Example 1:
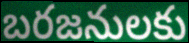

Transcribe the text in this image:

బరజనులకు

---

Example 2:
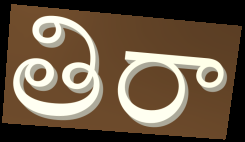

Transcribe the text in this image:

తిరా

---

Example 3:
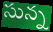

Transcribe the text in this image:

సున్న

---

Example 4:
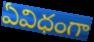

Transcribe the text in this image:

ఏవిధంగా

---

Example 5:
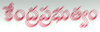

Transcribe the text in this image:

కేంద్రప్రభుత్వం